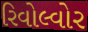
રિવોલ્વોર